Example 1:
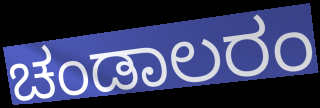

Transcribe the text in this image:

ಚಂಡಾಲರಂ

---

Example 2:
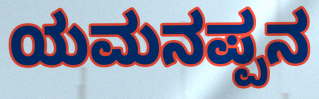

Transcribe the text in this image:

ಯಮನಪ್ಪನ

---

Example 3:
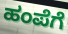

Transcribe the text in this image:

ಹಂಪೆಗೆ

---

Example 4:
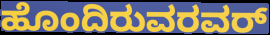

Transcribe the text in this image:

ಹೊಂದಿರುವರವರ್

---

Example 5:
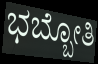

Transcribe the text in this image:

ಭಬ್ಬೋತಿ